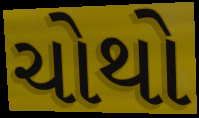
ચોથો